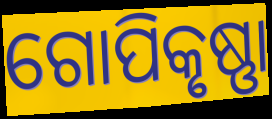
ଗୋପିକୃଷ୍ଣା